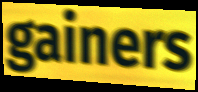
gainers